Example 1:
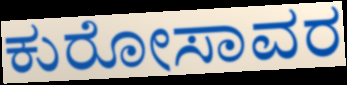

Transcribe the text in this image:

ಕುರೋಸಾವರ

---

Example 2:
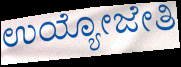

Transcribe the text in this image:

ಉಯ್ಯೋಜೇತಿ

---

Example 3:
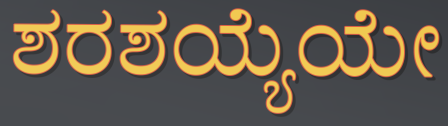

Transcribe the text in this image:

ಶರಶಯ್ಯೆಯೇ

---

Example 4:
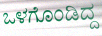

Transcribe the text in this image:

ಒಳಗೊಂಡಿದ್ದ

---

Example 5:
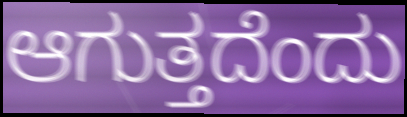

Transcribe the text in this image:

ಆಗುತ್ತದೆಂದು